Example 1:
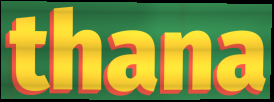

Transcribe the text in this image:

thana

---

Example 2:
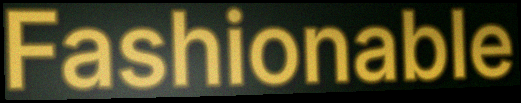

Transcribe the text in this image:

Fashionable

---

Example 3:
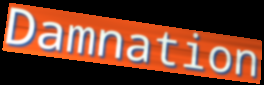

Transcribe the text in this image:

Damnation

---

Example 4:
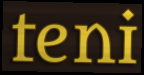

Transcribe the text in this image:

teni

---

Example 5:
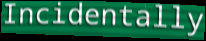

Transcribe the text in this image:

Incidentally